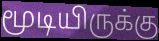
மூடியிருக்கு